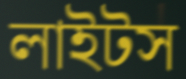
লাইটস